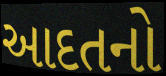
આદતનો